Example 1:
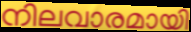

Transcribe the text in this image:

നിലവാരമായി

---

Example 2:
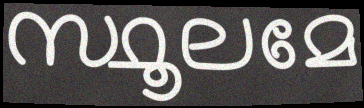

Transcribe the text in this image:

സ്ഥൂലമേ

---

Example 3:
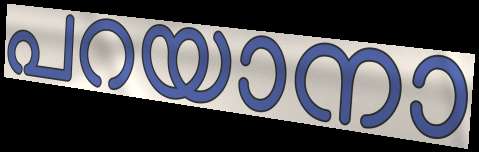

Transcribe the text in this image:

പറയാനാ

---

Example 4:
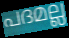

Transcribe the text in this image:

പദമല്ല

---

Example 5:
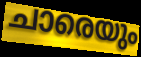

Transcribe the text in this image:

ചാരെയും